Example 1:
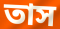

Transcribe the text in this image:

তাস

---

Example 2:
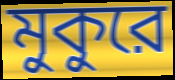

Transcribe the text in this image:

মুকুরে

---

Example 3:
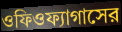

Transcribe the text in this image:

ওফিওফ্যাগাসের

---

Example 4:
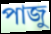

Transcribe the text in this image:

পাজু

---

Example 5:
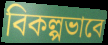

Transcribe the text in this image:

বিকল্পভাবে